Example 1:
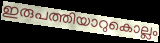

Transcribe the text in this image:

ഇരുപത്തിയാറുകൊല്ലം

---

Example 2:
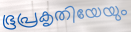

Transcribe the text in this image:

ഭൂപ്രകൃതിയേയും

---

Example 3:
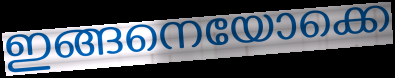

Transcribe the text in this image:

ഇങ്ങനെയോക്കെ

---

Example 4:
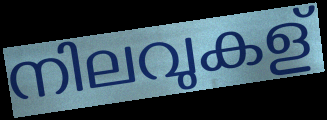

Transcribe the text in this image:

നിലവുകള്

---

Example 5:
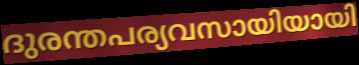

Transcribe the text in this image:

ദുരന്തപര്യവസായിയായി